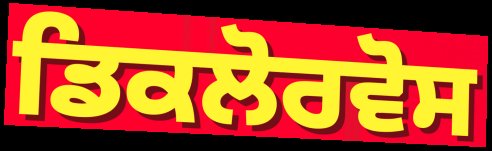
ਡਿਕਲੋਰਵੋਸ